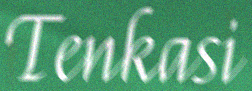
Tenkasi